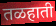
तळहाती